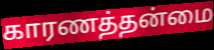
காரணத்தன்மை